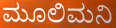
ಮೂಲಿಮನಿ